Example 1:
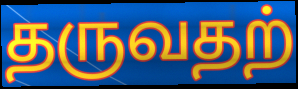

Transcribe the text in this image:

தருவதற்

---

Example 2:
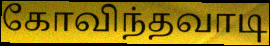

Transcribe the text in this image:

கோவிந்தவாடி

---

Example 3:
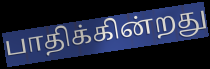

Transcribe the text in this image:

பாதிக்கின்றது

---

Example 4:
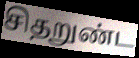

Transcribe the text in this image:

சிதறுண்ட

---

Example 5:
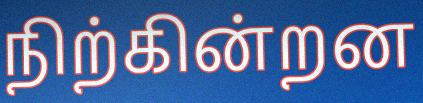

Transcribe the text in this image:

நிற்கின்றன